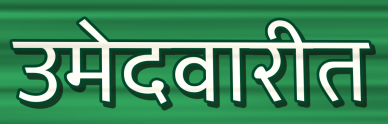
उमेदवारीत